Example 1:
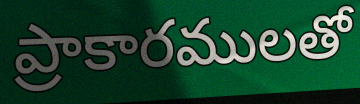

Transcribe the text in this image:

ప్రాకారములతో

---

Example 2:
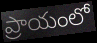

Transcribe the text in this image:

ప్రాయంలో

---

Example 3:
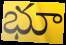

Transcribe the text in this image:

భూ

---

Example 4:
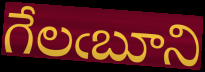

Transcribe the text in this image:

గేలఁబూని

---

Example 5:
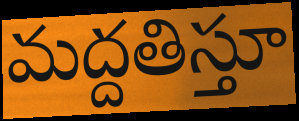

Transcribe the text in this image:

మద్దతిస్తూ